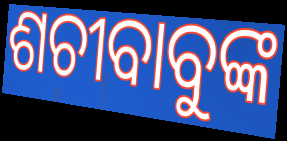
ଶଚୀବାବୁଙ୍କ